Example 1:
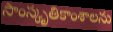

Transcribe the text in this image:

సాంస్కృతికాంశాలను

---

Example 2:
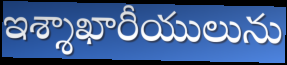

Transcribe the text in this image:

ఇశ్శాఖారీయులును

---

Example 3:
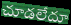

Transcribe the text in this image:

చూడలేదూ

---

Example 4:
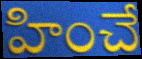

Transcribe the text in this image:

హించే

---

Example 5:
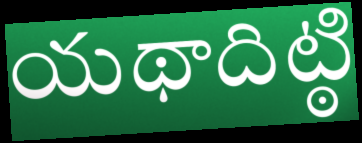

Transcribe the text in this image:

యథాదిట్ఠి